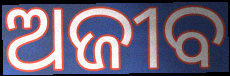
ଅଜୀବ